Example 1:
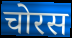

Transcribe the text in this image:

चोरस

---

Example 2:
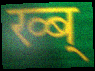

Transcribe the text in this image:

ख्ब्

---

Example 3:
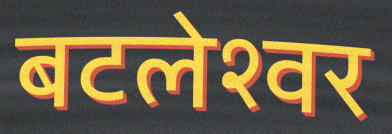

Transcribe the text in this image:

बटलेश्वर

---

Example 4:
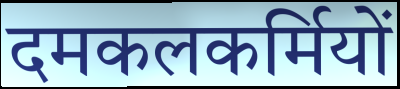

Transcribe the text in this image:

दमकलकर्मियों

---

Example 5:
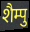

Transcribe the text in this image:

शैम्पु